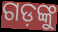
ଗଡ଼ଙ୍କୁ